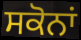
ਸਕੋਨਾਂ